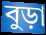
বুড়া